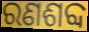
ରଣଶବ୍ଦ